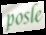
posle